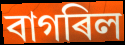
বাগৰিল